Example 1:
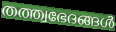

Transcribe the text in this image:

തത്ത്വഭേദങ്ങൾ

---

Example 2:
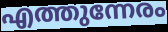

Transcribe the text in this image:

എത്തുന്നേരം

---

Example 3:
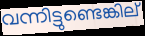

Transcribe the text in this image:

വന്നിട്ടുണ്ടെങ്കില്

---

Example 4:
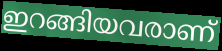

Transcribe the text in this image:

ഇറങ്ങിയവരാണ്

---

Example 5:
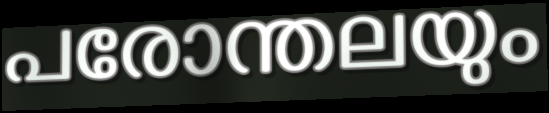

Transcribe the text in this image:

പരോന്തലയും